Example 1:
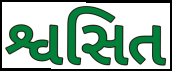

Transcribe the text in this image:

શ્વસિત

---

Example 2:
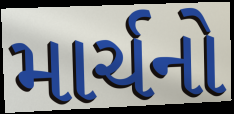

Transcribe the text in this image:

માર્ચનો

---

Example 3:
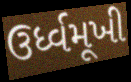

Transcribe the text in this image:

ઉર્ધ્વમૂખી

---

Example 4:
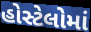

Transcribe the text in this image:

હોસ્ટેલોમાં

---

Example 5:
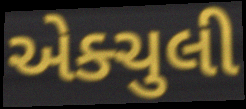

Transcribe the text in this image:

એક્ચુલી